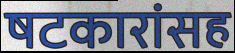
षटकारांसह